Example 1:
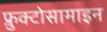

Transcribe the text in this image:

फ्रुक्टोसामाइन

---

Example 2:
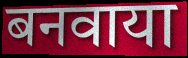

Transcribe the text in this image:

बनवाया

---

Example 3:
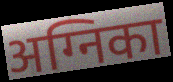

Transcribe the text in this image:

अग्निका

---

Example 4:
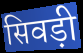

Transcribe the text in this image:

सिवड़ी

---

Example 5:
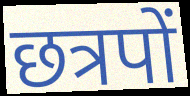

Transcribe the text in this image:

छत्रपों